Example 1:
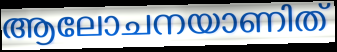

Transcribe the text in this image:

ആലോചനയാണിത്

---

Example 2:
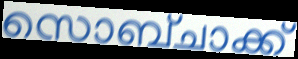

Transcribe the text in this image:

സൊബ്ചാക്ക്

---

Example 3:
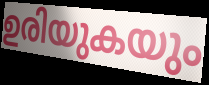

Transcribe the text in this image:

ഉരിയുകയും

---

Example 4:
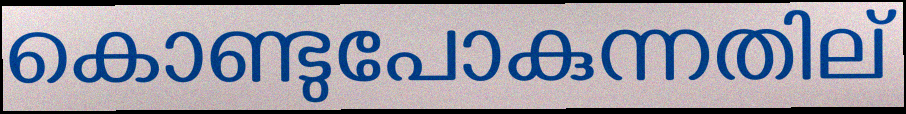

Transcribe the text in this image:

കൊണ്ടുപോകുന്നതില്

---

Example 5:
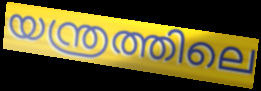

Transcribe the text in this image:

യന്ത്രത്തിലെ